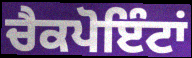
ਚੈਕਪੋਇੰਟਾਂ